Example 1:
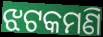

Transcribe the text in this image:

ଝଟକମଣି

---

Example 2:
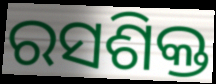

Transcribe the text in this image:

ରସଶିକ୍ତ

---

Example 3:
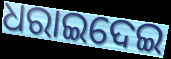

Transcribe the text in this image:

ଧରାଇଦେଇ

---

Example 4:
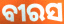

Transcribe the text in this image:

ବୀରସ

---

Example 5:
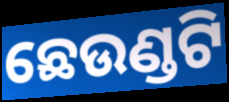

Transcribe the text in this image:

ଛେଉଣ୍ଡଟି